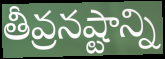
తీవ్రనష్టాన్ని